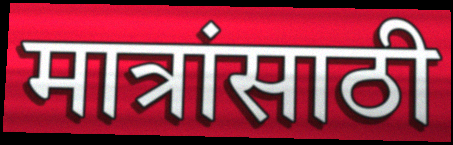
मात्रांसाठी